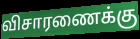
விசாரணைக்கு